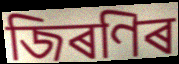
জিৰণিৰ